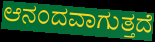
ಆನಂದವಾಗುತ್ತದೆ